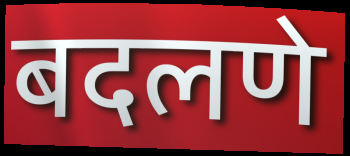
बदलणे